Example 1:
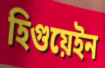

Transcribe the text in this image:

হিগুয়েইন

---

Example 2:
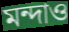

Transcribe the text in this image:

মন্দাও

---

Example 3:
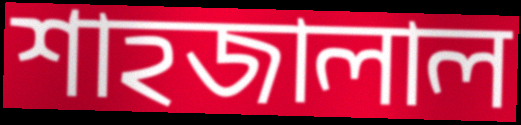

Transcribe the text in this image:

শাহজালাল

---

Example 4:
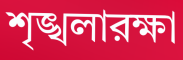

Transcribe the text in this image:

শৃঙ্খলারক্ষা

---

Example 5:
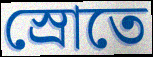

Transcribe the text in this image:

স্রোতে